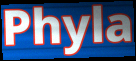
Phyla